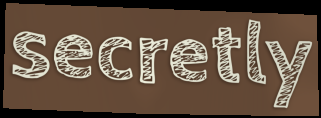
secretly